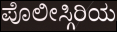
ಪೊಲೀಸ್ಗಿರಿಯ